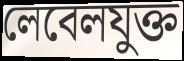
লেবেলযুক্ত